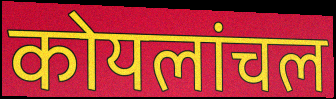
कोयलांचल